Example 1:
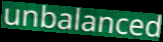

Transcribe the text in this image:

unbalanced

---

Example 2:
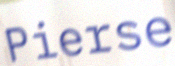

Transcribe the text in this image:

Pierse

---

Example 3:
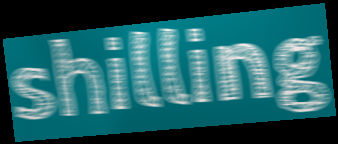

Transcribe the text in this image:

shilling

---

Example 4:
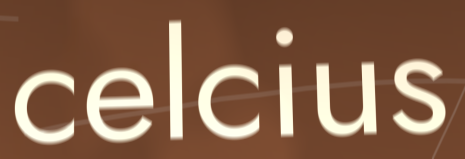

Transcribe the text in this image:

celcius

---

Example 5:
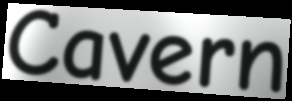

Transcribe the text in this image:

Cavern